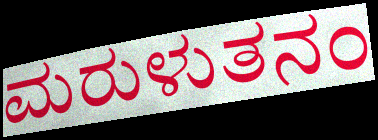
ಮರುಳುತನಂ